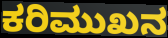
ಕರಿಮುಖನ